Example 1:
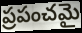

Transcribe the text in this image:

ప్రపంచమై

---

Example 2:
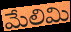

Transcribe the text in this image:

మేలిమి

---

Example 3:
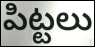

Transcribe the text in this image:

పిట్టలు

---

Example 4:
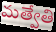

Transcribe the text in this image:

మత్వేతి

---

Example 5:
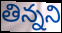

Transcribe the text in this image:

తిన్నని